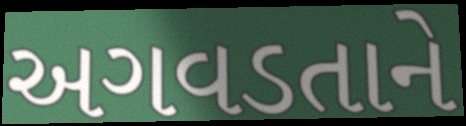
અગવડતાને